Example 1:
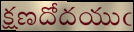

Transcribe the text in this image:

క్షణదోదయుఁ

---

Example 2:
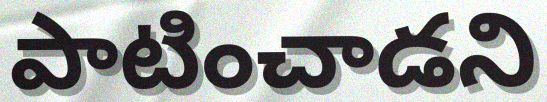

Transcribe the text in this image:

పాటించాడని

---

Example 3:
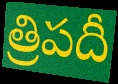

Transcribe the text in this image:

త్రిపదీ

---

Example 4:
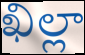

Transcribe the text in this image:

ఖిల్లా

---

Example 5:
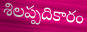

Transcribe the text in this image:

శిలప్పదికారం